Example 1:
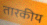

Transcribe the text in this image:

तारकीय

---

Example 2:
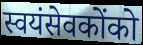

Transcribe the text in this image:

स्वयंसेवकोंको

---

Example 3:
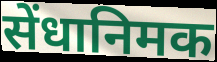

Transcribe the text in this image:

सेंधानिमक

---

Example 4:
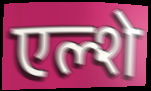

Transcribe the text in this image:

एल्शे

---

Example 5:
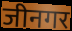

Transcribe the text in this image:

जीनगर